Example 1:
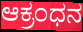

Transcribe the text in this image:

ಆಕ್ರಂಧನ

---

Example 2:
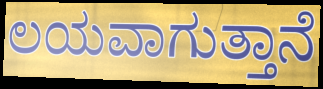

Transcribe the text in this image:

ಲಯವಾಗುತ್ತಾನೆ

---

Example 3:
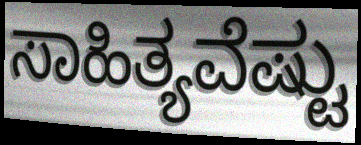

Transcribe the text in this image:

ಸಾಹಿತ್ಯವೆಷ್ಟು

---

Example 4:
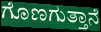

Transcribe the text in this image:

ಗೊಣಗುತ್ತಾನೆ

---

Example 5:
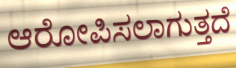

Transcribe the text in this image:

ಆರೋಪಿಸಲಾಗುತ್ತದೆ